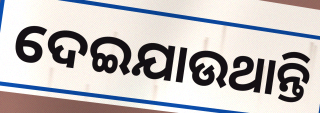
ଦେଇଯାଉଥାନ୍ତି